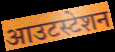
आउटस्टेशन